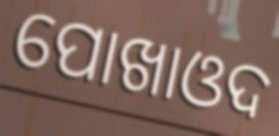
ପୋଖାଓଦ